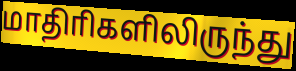
மாதிரிகளிலிருந்து